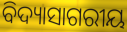
ବିଦ୍ୟାସାଗରୀୟ